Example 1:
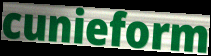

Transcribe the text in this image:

cunieform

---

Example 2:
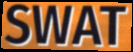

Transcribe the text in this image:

SWAT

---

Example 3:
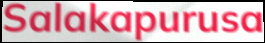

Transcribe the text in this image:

Salakapurusa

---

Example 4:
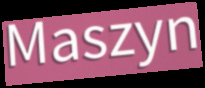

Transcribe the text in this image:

Maszyn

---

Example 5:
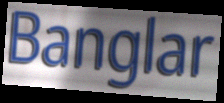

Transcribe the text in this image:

Banglar